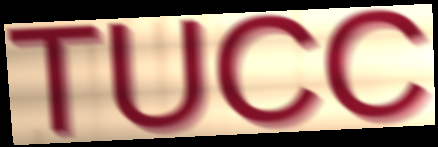
TUCC